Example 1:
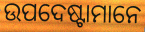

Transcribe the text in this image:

ଉପଦେଷ୍ଟାମାନେ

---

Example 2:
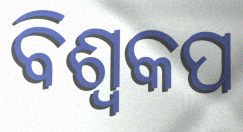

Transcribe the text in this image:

ବିଶ୍ବକପ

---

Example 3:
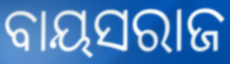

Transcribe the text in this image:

ବାୟସରାଜ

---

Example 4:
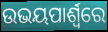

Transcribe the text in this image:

ଉଭୟପାର୍ଶ୍ବରେ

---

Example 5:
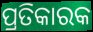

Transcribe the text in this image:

ପ୍ରତିକାରକ